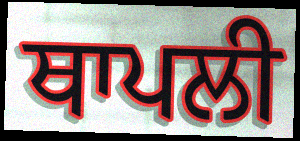
ਥਾਪਲੀ